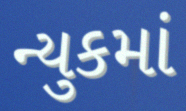
ન્યુકમાં